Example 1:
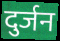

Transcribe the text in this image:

दुर्जन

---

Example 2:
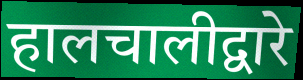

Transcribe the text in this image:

हालचालीद्वारे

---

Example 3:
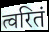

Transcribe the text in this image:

त्वरितं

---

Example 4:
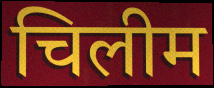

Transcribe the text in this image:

चिलीम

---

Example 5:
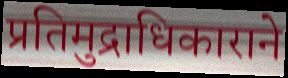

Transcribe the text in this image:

प्रतिमुद्राधिकाराने